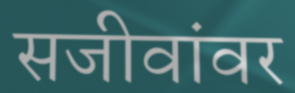
सजीवांवर